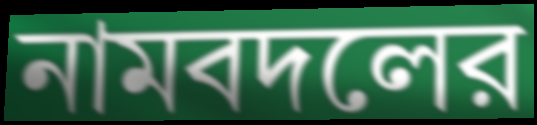
নামবদলের